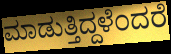
ಮಾಡುತ್ತಿದ್ದಳೆಂದರೆ